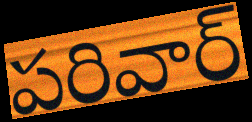
పరివార్